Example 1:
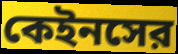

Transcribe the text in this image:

কেইনসের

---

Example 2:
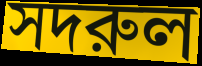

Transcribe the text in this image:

সদরুল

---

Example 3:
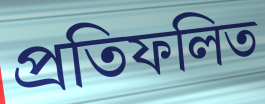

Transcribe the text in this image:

প্রতিফলিত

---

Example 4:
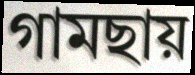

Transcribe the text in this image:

গামছায়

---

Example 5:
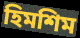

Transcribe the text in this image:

হিমশিম